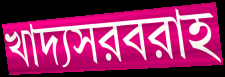
খাদ্যসরবরাহ